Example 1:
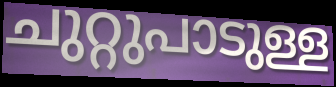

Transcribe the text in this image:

ചുറ്റുപാടുള്ള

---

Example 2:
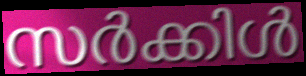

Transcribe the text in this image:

സർക്കിൾ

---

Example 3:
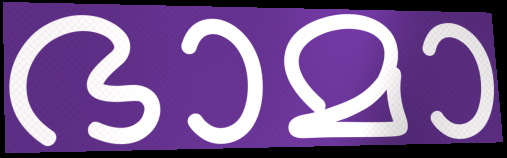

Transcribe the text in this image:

ഭാമാ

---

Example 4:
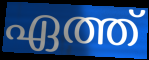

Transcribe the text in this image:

ഏത്ത്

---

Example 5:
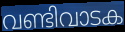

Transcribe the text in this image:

വണ്ടിവാടക